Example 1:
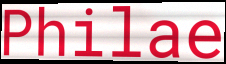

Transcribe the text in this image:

Philae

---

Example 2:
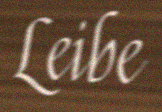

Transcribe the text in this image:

Leibe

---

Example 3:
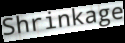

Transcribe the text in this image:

Shrinkage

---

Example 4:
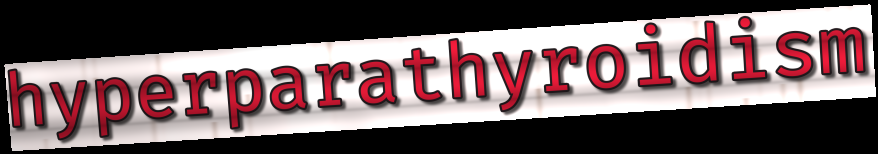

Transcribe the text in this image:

hyperparathyroidism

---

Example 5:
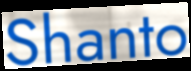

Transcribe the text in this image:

Shanto